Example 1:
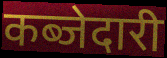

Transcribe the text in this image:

कब्जेदारी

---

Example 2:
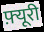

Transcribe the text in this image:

फ़्यूरी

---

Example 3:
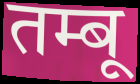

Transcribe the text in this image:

तम्‍बू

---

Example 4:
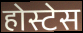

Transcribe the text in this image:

होस्टेस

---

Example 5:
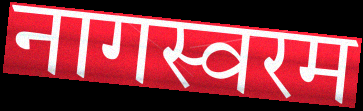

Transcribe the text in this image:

नागस्वरम